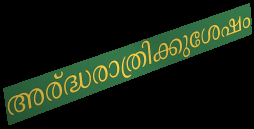
അര്ദ്ധരാത്രിക്കുശേഷം